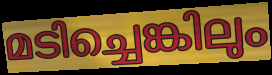
മടിച്ചെങ്കിലും